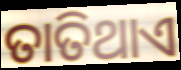
ତାତିଥାଏ